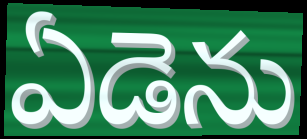
ఏడెను